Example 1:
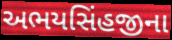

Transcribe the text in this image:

અભયસિંહજીના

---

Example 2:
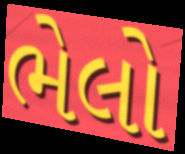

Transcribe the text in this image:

ભેલો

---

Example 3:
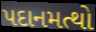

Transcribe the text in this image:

પદાનમત્થો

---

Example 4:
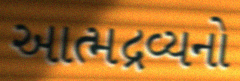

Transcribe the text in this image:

આત્મદ્રવ્યનો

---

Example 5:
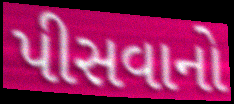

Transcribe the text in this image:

પીસવાનો